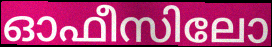
ഓഫീസിലോ